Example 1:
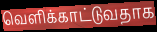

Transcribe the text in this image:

வெளிக்காட்டுவதாக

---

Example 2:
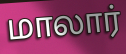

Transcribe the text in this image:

மாலார்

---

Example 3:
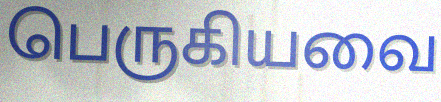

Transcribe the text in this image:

பெருகியவை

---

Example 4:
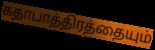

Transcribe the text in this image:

கதாபாத்திரத்தையும்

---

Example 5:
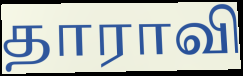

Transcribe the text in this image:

தாராவி